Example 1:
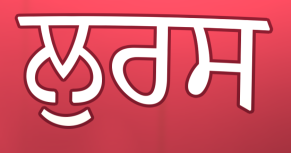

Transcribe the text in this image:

ਲੁਰਸ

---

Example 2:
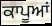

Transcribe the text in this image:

ਕਾਪੂਆਂ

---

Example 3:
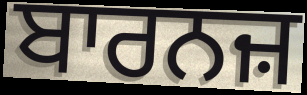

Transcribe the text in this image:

ਬਾਰਨਜ਼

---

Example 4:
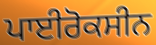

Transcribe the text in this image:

ਪਾਈਰੋਕਸੀਨ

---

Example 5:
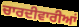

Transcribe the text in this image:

ਚਾਰਦੀਵਾਰੀਆਂ